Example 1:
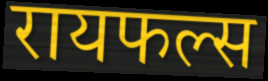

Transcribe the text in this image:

रायफल्स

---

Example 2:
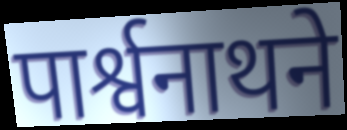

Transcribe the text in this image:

पार्श्वनाथने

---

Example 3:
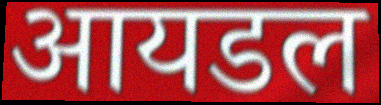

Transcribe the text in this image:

आयडल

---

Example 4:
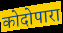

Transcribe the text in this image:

कोदोपारा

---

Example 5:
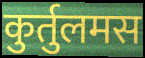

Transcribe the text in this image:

कुर्तुलमस